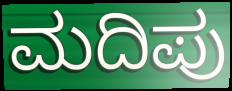
ಮದಿಪು